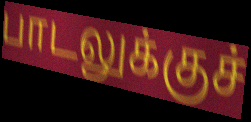
பாடலுக்குச்